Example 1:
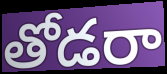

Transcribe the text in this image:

తోడరా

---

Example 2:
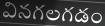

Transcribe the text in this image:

వినగలగడం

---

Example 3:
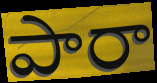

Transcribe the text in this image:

పారా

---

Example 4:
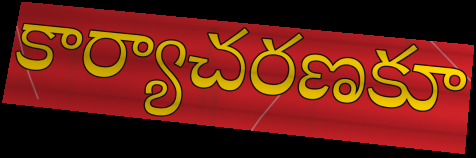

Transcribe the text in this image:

కార్యాచరణకూ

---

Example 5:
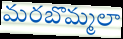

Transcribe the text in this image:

మరబొమ్మలా